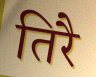
तिरै